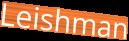
Leishman